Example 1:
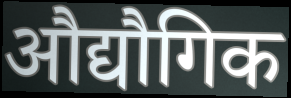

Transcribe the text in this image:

औद्यौगिक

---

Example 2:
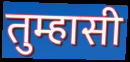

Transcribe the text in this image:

तुम्हासी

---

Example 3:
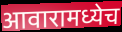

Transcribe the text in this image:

आवारामध्येच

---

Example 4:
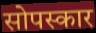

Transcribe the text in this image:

सोपस्कार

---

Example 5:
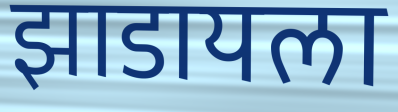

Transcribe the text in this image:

झाडायला